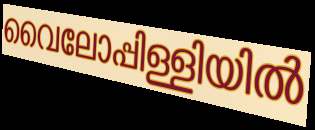
വൈലോപ്പിള്ളിയിൽ